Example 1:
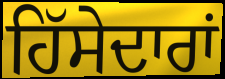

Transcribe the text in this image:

ਹਿੱਸੇਦਾਰਾਂ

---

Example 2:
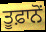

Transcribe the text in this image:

ਤੂਫ਼ਾਨੋਂ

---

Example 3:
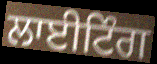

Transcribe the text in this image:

ਲਾਈਟਿੰਗ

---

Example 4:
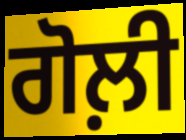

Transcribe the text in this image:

ਗੋਲ਼ੀ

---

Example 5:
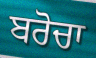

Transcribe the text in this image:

ਬਰੋਚਾ